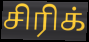
சிரிக்